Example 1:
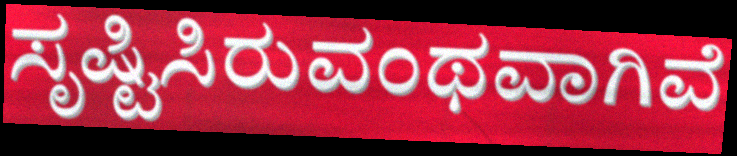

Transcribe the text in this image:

ಸೃಷ್ಟಿಸಿರುವಂಥವಾಗಿವೆ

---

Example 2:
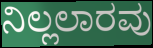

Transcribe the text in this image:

ನಿಲ್ಲಲಾರವು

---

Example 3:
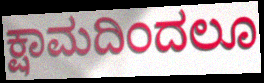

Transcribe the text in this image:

ಕ್ಷಾಮದಿಂದಲೂ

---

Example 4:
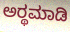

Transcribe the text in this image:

ಅರ್‍ಥಮಾಡಿ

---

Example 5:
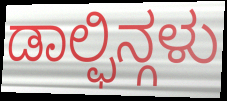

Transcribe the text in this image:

ಡಾಲ್ಫಿನ್ಗಳು